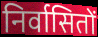
निर्वासितों